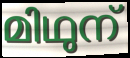
മിഥുന്